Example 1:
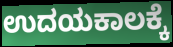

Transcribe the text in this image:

ಉದಯಕಾಲಕ್ಕೆ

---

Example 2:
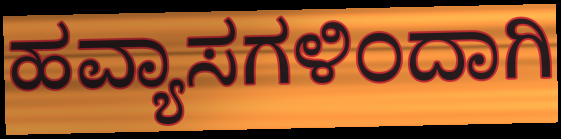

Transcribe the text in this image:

ಹವ್ಯಾಸಗಳಿಂದಾಗಿ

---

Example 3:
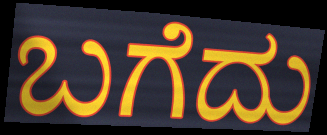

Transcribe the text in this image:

ಬಗೆದು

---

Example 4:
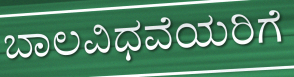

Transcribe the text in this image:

ಬಾಲವಿಧವೆಯರಿಗೆ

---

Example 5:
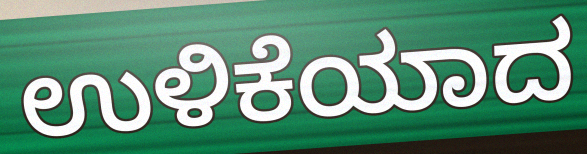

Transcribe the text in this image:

ಉಳಿಕೆಯಾದ